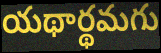
యథార్థమగు